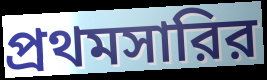
প্রথমসারির